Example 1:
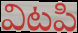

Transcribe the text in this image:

విటపి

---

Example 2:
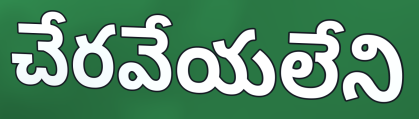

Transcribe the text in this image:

చేరవేయలేని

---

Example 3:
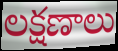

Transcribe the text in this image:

లక్షణాలు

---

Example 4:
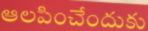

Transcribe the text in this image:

ఆలపించేందుకు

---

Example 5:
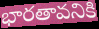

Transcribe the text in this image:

భారతావనికి